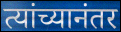
त्यांच्यानंतर